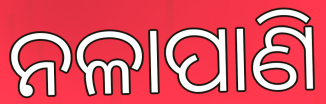
ନଳାପାଣି